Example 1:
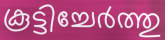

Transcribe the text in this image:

കൂട്ടിച്ചേർത്തു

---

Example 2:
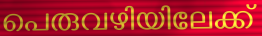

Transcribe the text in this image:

പെരുവഴിയിലേക്ക്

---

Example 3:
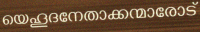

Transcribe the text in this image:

യെഹൂദനേതാക്കന്മാരോട്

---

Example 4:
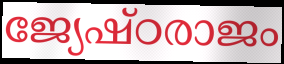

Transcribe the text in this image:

ജ്യേഷ്ഠരാജം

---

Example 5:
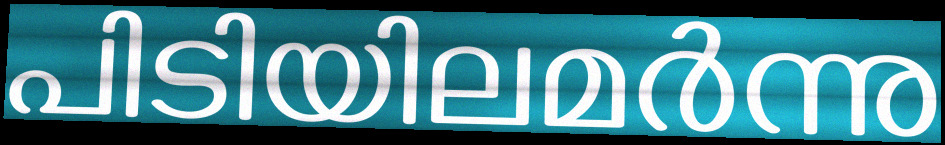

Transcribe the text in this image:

പിടിയിലമർന്നു